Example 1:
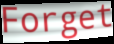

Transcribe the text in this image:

Forget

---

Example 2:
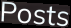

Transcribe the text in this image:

Posts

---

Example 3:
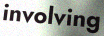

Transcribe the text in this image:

involving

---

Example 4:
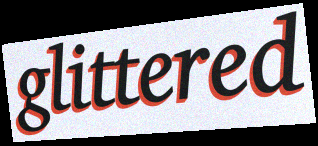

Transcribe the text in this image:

glittered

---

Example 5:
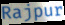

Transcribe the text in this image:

Rajpur